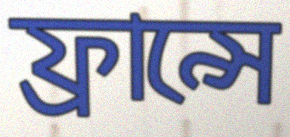
ফ্ৰান্সে